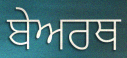
ਬੇਅਰਥ